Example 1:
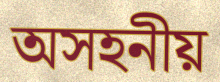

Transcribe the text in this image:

অসহনীয়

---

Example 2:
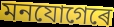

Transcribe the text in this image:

মনযোগেৰে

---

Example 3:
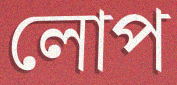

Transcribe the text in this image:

লোপ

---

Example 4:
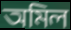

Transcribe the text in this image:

অমিল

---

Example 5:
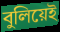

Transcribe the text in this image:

বুলিয়েই